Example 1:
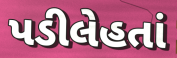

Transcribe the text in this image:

પડીલેહતાં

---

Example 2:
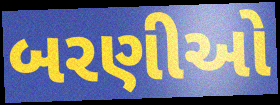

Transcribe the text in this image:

બરણીઓ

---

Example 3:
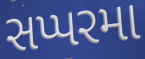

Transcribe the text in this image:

સપ્પરમા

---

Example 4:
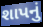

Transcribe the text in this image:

શાપનું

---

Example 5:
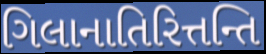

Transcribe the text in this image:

ગિલાનાતિરિત્તન્તિ